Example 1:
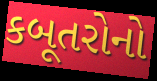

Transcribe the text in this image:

કબૂતરોનો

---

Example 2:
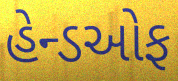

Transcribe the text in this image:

હેન્ડઓફ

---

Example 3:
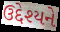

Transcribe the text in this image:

ઉદ્દેશ્યને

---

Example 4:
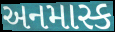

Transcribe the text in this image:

અનમાસ્ક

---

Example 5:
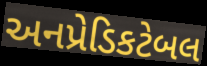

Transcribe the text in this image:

અનપ્રેડિકટેબલ